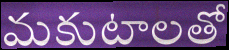
మకుటాలతో